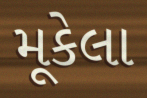
મૂકેલા